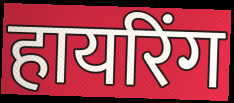
हायरिंग